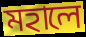
মহালে